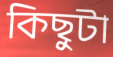
কিছুটা